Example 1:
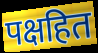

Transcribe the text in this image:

पक्षहित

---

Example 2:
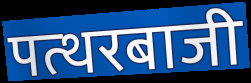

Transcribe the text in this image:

पत्थरबाजी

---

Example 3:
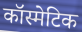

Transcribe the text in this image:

कॉस्मेटिक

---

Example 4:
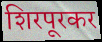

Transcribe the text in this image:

शिरपूरकर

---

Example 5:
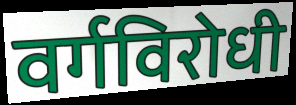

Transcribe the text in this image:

वर्गविरोधी